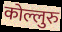
कोल्लुरु